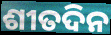
ଶୀତଦିନ